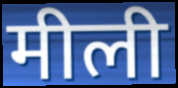
मीली